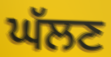
ਘੱਲਣ